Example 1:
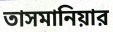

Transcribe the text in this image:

তাসমানিয়ার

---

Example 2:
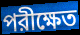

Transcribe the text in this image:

পরীক্ষেত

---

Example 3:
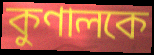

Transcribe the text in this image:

কুণালকে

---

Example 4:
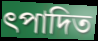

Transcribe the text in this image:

ৎপাদিত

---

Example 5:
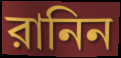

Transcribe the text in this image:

রানিন